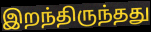
இறந்திருந்தது